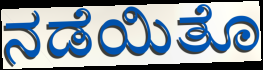
ನಡೆಯಿತೊ